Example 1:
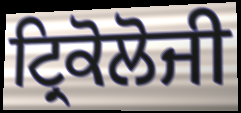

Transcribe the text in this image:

ਟ੍ਰਿਕੋਲੋਜੀ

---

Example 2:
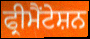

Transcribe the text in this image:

ਫ੍ਰੀਮੈਂਟੇਸ਼ਨ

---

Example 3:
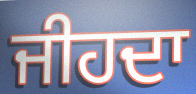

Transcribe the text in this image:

ਜੀਹਦਾ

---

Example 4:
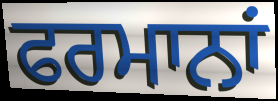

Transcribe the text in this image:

ਫਰਮਾਨਾਂ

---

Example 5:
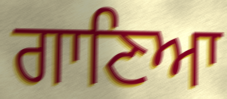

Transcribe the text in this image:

ਗਾਣਿਆ